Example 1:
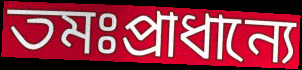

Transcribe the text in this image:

তমঃপ্রাধান্যে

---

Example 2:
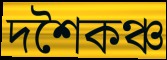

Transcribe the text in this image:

দশৈকঞ্চ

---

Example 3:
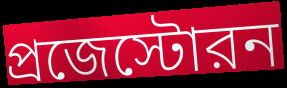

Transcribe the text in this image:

প্রজেস্টোরন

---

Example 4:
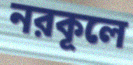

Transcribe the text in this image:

নরকূলে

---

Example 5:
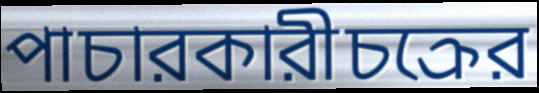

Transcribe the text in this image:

পাচারকারীচক্রের